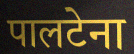
पालटेना